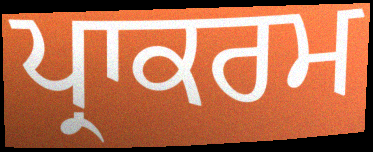
ਪ੍ਰਾਕਰਮ